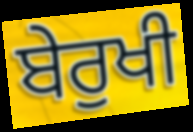
ਬੇਰੁਖੀ